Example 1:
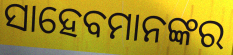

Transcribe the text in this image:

ସାହେବମାନଙ୍କର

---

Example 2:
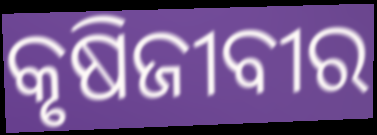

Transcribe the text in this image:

କୃଷିଜୀବୀର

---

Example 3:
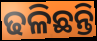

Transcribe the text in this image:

ଢଳିଛନ୍ତି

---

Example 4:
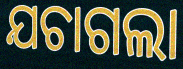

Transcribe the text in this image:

ଯଚାଗଲା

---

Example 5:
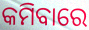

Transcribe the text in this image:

କମିବାରେ